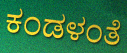
ಕಂಡಳಂತೆ